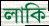
লাকি